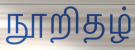
நூறிதழ்